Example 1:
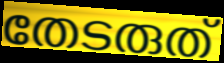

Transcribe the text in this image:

തേടരുത്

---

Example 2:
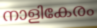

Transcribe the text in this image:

നാളികേരം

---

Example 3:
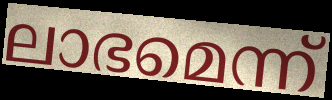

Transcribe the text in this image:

ലാഭമെന്ന്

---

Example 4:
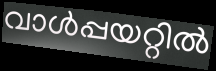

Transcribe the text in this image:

വാൾപ്പയറ്റിൽ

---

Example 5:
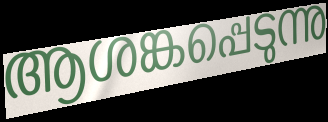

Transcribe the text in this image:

ആശങ്കപ്പെടുന്നു